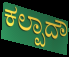
ಕಲ್ಪಾದೌ